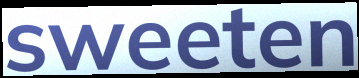
sweeten